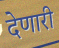
देणारी